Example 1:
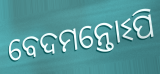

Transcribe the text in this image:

ବେଦମନ୍ତୋଽପି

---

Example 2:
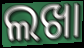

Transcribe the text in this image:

ଲଖା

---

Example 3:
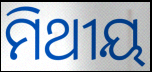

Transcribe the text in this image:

ମିଥୀୟ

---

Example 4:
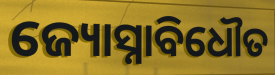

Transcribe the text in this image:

ଜ୍ୟୋସ୍ନାବିଧୌତ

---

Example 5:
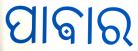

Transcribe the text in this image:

ପାଵାର